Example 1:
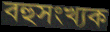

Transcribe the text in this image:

বহুসংখ্যক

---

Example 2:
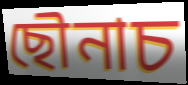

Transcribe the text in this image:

ছৌনাচ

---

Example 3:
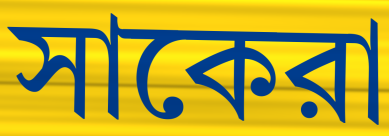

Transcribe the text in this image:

সাকেরা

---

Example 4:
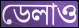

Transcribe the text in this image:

ডেলাও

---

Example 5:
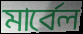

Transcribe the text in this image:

মার্বেল